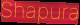
Shapura